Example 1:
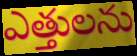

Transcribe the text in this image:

ఎత్తులను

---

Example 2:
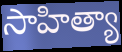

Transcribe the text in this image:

సాహిత్యా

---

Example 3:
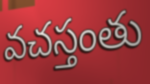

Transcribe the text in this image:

వచస్తంతు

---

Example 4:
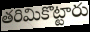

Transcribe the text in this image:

తరిమికొట్టారు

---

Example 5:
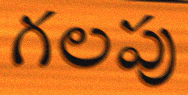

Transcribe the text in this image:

గలపు